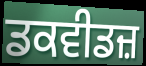
ਡਕਵੀਡਜ਼